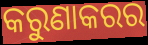
କରୁଣାକରର